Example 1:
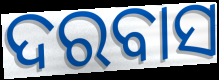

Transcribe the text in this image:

ଦରବାସ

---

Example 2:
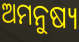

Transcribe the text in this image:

ଅମନୁଷ୍ୟ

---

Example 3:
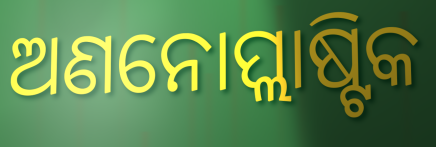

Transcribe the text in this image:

ଅଣନୋପ୍ଲାଷ୍ଟିକ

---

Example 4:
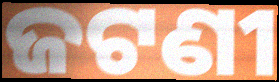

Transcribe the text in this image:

ଜଟଣୀ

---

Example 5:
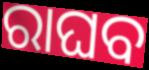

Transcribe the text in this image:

ରାଘବ